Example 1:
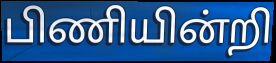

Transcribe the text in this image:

பிணியின்றி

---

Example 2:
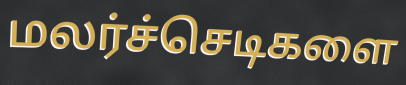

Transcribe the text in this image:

மலர்ச்செடிகளை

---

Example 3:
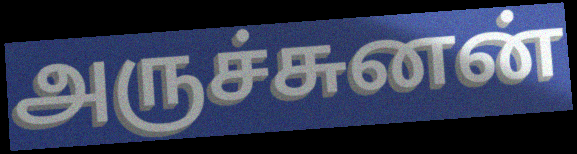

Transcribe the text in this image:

அருச்சுனன்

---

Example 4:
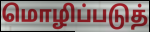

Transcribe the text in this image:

மொழிப்படுத்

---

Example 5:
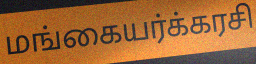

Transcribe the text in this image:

மங்கையர்க்கரசி